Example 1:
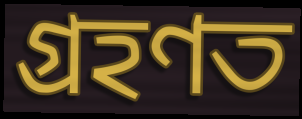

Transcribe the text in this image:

গ্ৰহণত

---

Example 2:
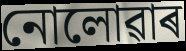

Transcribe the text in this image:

নোলোৱাৰ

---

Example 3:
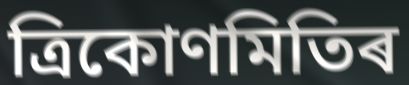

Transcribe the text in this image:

ত্ৰিকোণমিতিৰ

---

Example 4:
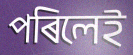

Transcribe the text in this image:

পৰিলেই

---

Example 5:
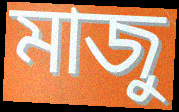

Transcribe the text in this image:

মাজু